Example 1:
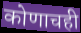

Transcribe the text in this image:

कोणाचही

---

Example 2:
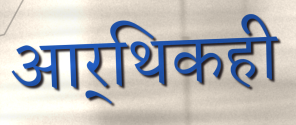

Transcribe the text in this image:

आर्थिकही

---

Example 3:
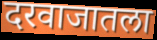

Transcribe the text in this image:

दरवाजातला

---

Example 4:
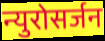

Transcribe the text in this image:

न्युरोसर्जन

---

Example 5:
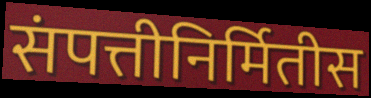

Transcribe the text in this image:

संपत्तीनिर्मितीस